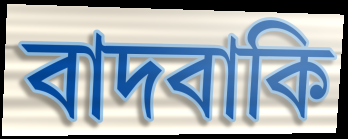
বাদবাকি